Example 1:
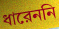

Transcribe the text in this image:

ধারেননি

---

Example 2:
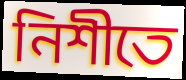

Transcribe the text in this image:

নিশীতে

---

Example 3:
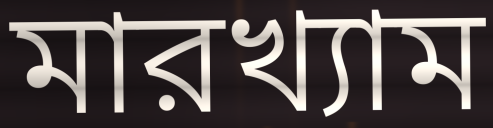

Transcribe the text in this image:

মারখ্যাম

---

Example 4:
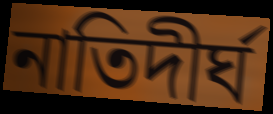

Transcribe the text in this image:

নাতিদীর্ঘ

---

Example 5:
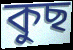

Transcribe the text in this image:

কুছ